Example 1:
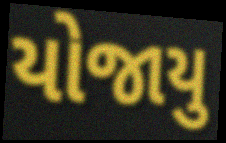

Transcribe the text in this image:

યોજાયુ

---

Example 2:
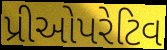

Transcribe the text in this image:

પ્રીઓપરેટિવ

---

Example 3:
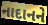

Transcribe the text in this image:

નાદાનને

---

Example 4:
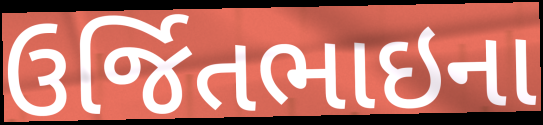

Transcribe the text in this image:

ઉર્જિતભાઇના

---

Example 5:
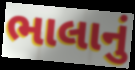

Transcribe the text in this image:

ભાલાનું